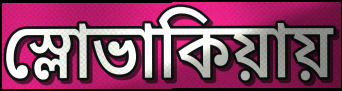
স্লোভাকিয়ায়